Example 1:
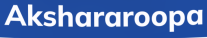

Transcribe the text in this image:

Akshararoopa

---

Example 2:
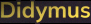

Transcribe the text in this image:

Didymus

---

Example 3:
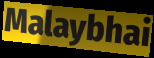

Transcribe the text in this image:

Malaybhai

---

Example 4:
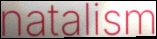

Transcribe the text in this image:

natalism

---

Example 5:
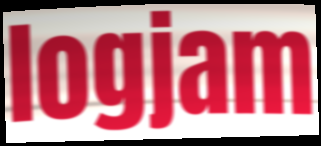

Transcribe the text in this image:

logjam